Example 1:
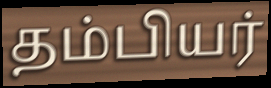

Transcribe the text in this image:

தம்பியர்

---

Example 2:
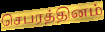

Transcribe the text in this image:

செபரத்தினம்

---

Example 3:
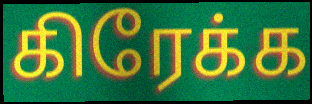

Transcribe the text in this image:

கிரேக்க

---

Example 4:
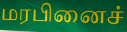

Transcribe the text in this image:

மரபினைச்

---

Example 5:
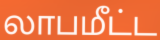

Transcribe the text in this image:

லாபமீட்ட